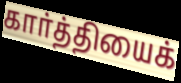
கார்த்தியைக்